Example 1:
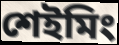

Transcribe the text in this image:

শেইমিং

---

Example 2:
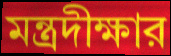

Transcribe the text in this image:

মন্ত্রদীক্ষার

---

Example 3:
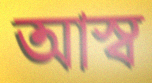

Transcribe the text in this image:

আস্ব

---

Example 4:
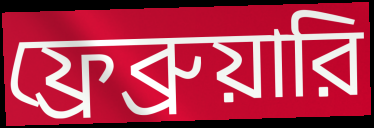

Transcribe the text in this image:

ফ্রেব্রুয়ারি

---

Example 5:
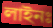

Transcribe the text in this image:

লাইনঃ